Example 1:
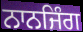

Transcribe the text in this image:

ਨਾਨਜਿੰਗ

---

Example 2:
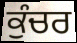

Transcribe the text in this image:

ਕੁੰਚਰ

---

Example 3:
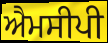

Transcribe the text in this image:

ਐਮਸੀਪੀ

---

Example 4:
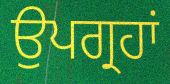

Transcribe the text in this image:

ਉਪਗ੍ਰਹਾਂ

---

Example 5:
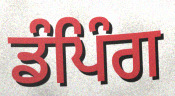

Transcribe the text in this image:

ਡੰਪਿੰਗ